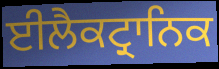
ਈਲੈਕਟ੍ਰਾਨਿਕ